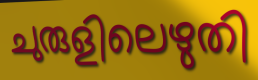
ചുരുളിലെഴുതി